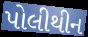
પોલીથીન